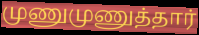
முணுமுணுத்தார்